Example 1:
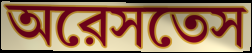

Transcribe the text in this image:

অরেসতেস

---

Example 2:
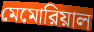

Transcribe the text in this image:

মেমোরিয়াল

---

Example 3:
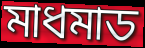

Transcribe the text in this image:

মাধমাড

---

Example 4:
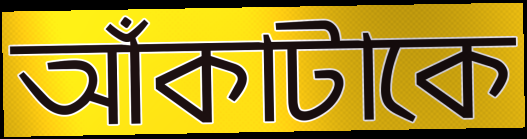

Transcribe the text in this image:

আঁকাটাকে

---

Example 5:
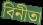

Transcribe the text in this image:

বিনীতা